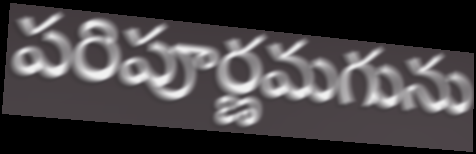
పరిపూర్ణమగును